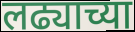
लढ्याच्या